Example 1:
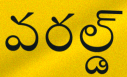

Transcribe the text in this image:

వరల్డ్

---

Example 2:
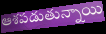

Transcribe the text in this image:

ఆశపడుతున్నాయి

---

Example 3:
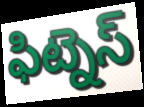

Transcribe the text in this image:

ఫిట్నెస్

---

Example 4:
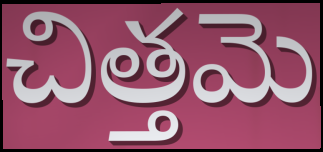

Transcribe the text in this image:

చిత్తమె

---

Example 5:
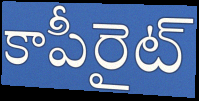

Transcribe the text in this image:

కాపీరైట్